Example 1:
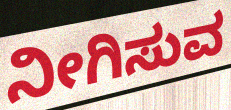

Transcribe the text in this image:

ನೀಗಿಸುವ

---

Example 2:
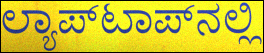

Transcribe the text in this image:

ಲ್ಯಾಪ್‌ಟಾಪ್‌ನಲ್ಲಿ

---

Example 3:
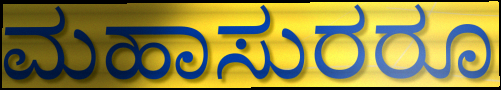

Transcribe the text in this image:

ಮಹಾಸುರರೂ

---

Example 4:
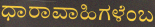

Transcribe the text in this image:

ಧಾರಾವಾಹಿಗಳೆಂಬ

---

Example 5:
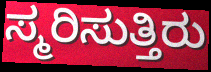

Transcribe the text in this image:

ಸ್ಮರಿಸುತ್ತಿರು